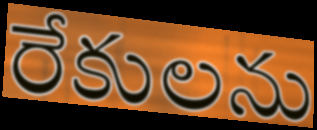
రేకులను